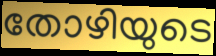
തോഴിയുടെ